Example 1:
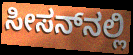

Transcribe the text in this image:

ಸೀಸನ್‌ನಲ್ಲಿ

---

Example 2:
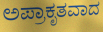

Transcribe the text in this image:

ಅಪ್ರಾಕೃತವಾದ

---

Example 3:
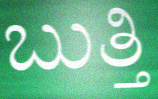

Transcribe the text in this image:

ಬುತ್ತಿ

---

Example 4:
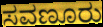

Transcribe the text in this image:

ಸವಣೂರು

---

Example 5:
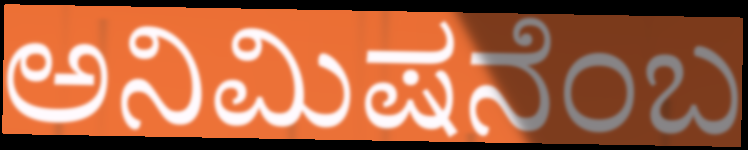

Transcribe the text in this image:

ಅನಿಮಿಷನೆಂಬ